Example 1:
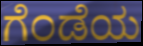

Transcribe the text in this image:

ಗೆಂಡೆಯ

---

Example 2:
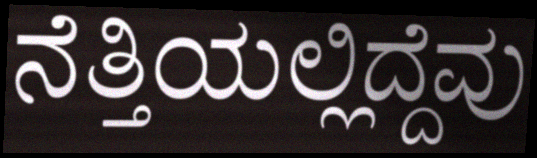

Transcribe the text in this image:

ನೆತ್ತಿಯಲ್ಲಿದ್ದೆವು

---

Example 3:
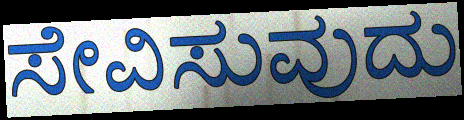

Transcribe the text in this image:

ಸೇವಿಸುವುದು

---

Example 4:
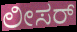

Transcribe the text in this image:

ಲೀಸರ್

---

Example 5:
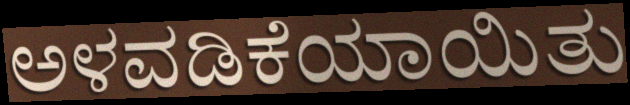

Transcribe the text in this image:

ಅಳವಡಿಕೆಯಾಯಿತು